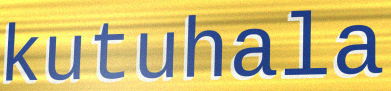
kutuhala